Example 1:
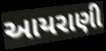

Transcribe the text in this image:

આયરાણી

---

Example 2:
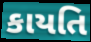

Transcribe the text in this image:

કાયતિ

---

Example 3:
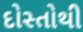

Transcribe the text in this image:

દોસ્તોથી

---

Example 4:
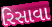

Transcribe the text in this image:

રિસાવા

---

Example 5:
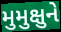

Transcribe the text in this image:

મુમુક્ષુને